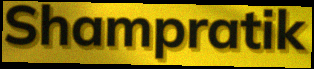
Shampratik